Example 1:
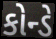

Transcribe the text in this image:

કોન્ડે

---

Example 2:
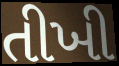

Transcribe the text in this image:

તીખી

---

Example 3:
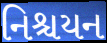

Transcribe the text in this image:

નિશ્ચયન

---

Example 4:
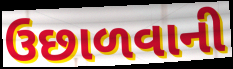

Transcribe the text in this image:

ઉછાળવાની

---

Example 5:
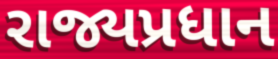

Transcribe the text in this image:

રાજ્યપ્રધાન